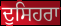
ਦੁਸਿਹਰਾ